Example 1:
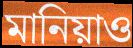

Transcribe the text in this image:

মানিয়াও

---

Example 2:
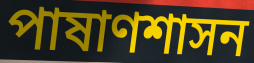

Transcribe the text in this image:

পাষাণশাসন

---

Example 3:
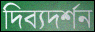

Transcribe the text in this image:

দিব্যদর্শন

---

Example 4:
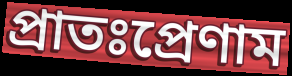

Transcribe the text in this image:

প্রাতঃপ্রেণাম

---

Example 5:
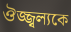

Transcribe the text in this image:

ঔজ্জ্বল্যকে